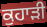
ਕੁਹਾੜੀ